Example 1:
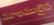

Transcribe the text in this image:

మూలములైన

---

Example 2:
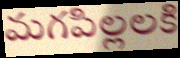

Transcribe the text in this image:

మగపిల్లలకి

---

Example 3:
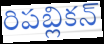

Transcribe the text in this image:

రిపబ్లికన్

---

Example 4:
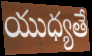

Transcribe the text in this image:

యుధ్యతే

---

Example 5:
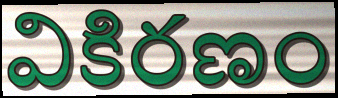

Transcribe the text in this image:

వికిరణం